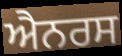
ਐਨਰਸ